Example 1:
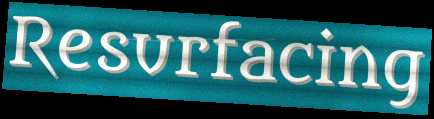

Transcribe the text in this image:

Resurfacing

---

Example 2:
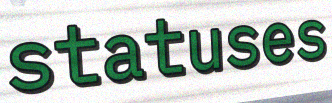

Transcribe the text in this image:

statuses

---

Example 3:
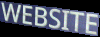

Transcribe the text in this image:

WEBSITE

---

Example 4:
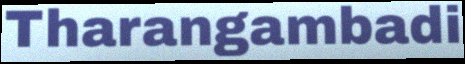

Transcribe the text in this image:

Tharangambadi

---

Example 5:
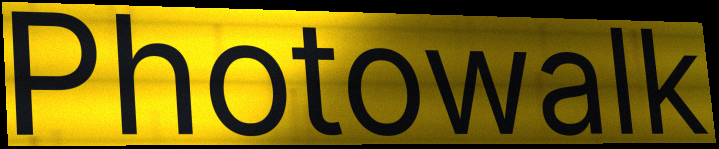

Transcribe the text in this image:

Photowalk